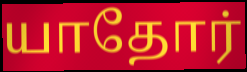
யாதோர்